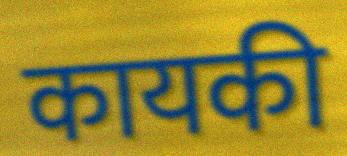
कायकी